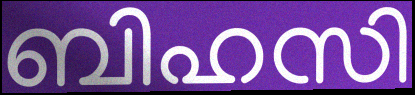
ബിഹസി